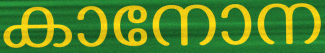
കാനോന